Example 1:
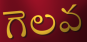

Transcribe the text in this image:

గెలవ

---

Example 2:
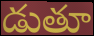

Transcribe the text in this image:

డుతూ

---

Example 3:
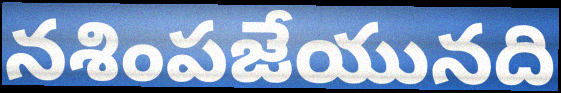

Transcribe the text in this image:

నశింపజేయునది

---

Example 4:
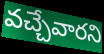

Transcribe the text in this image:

వచ్చేవారని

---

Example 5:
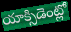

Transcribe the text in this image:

యాక్సిడెంట్లో